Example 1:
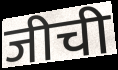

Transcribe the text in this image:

जीची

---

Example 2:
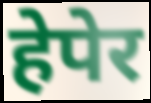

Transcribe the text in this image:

हेपेर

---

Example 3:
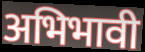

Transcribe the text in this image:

अभिभावी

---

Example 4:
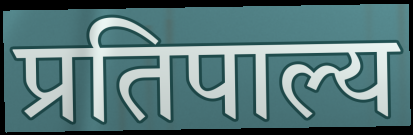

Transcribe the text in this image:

प्रतिपाल्य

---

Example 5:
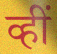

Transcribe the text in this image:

व्हीं